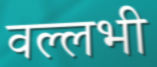
वल्लभी